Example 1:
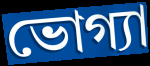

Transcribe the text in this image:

ভোগ্যা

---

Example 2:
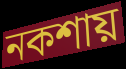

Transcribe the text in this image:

নকশায়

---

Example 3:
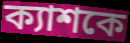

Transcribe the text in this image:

ক্যাশকে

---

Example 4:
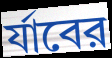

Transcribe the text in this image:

র্যাবের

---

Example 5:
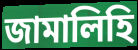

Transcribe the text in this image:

জামালিহি